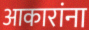
आकारांना